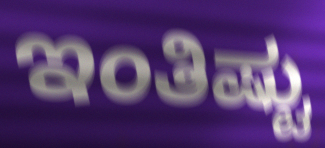
ಇಂತಿಷ್ಟು